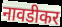
नावडीकर